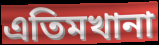
এতিমখানা